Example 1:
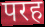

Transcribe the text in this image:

परह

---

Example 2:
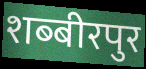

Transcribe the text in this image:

शब्‍बीरपुर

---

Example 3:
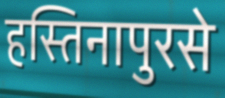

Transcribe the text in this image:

हस्तिनापुरसे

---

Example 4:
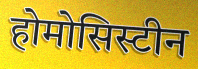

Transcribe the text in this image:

होमोसिस्टीन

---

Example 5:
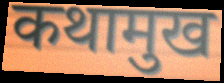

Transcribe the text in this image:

कथामुख